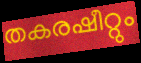
തകരഷീറ്റും